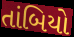
તાંબિયો